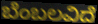
ಬೆಂಬಲವಿದೆ